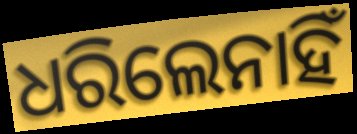
ଧରିଲେନାହିଁ